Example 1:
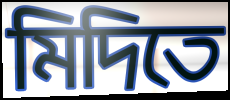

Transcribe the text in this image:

মিদিতে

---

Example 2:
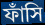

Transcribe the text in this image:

ফাঁসি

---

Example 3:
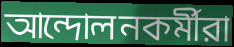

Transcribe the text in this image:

আন্দোলনকর্মীরা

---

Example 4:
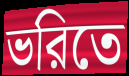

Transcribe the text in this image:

ভরিতে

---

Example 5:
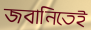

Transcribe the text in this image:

জবানিতেই